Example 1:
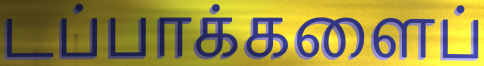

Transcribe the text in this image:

டப்பாக்களைப்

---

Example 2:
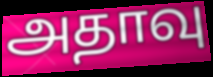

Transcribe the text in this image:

அதாவு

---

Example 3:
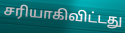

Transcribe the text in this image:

சரியாகிவிட்டது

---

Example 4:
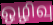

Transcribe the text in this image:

ஒழிவு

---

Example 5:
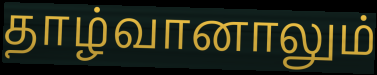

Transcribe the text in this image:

தாழ்வானாலும்